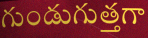
గుండుగుత్తగా